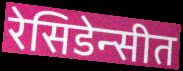
रेसिडेन्सीत